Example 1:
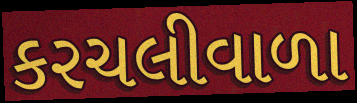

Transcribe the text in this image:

કરચલીવાળા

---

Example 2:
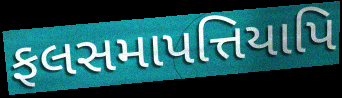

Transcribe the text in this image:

ફલસમાપત્તિયાપિ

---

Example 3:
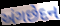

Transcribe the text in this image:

અંગછેદન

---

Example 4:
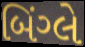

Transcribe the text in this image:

બિંગ્લે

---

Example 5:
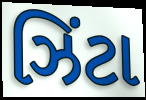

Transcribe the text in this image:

ઝિંટા